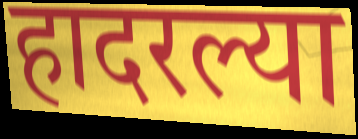
हादरल्या